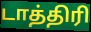
டாத்திரி